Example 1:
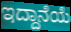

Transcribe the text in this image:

ಇದ್ದಾನೆಯೆ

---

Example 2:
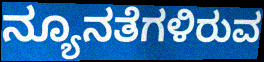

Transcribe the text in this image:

ನ್ಯೂನತೆಗಳಿರುವ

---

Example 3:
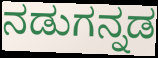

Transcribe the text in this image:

ನಡುಗನ್ನಡ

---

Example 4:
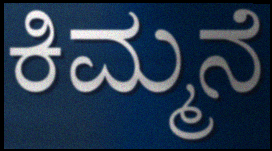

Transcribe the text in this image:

ಕಿಮ್ಮನೆ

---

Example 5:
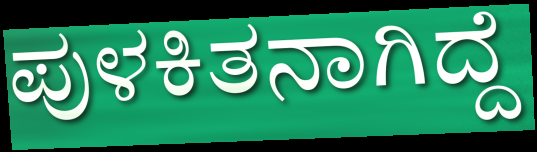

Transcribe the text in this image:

ಪುಳಕಿತನಾಗಿದ್ದೆ